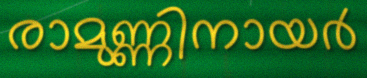
രാമുണ്ണിനായർ